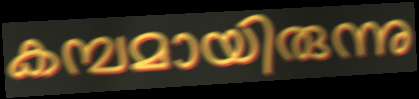
കമ്പമായിരുന്നു